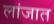
लांजात